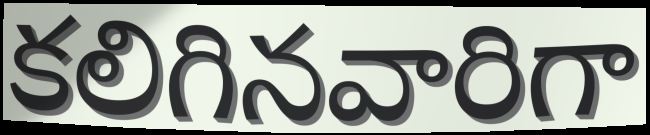
కలిగినవారిగా